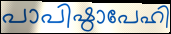
പാപിഷ്ഠാപേഹി